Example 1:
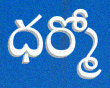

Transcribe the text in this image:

ధర్మో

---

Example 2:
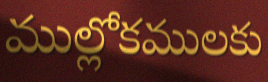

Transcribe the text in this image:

ముల్లోకములకు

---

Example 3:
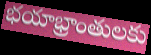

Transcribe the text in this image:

భయాభ్రాంతులకు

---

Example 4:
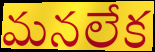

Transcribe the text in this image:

మనలేక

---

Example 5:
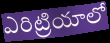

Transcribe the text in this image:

ఎరిట్రియాలో